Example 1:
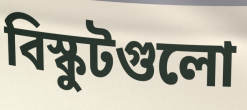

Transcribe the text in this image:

বিস্কুটগুলো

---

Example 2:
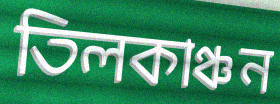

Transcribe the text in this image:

তিলকাঞ্চন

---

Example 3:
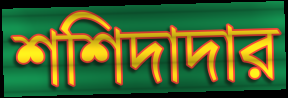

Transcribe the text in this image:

শশিদাদার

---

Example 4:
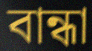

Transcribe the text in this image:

বান্ধা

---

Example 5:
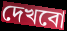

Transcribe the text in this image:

দেখবো